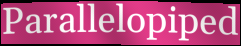
Parallelopiped